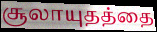
சூலாயுதத்தை